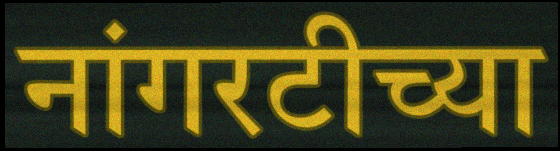
नांगरटीच्या